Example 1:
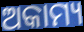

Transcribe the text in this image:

ଅକାମ୍ୟ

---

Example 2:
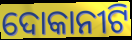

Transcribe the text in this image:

ଦୋକାନୀଟି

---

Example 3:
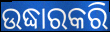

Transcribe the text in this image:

ଉଦ୍ଧାରକରି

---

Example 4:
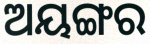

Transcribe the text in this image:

ଅୟଙ୍ଗର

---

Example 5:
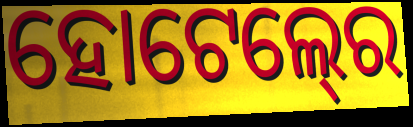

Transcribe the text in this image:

ହୋଟେଲ୍‍ରେ